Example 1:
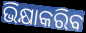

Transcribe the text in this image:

ଭିକ୍ଷାକରିବ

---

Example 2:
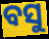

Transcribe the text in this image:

ବସୁ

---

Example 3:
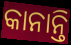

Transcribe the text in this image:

କାନାନ୍ତି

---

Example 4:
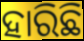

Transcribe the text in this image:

ହାରିଛି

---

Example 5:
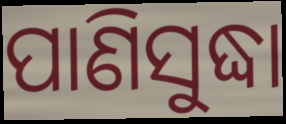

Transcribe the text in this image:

ପାଣିସୁଦ୍ଧା